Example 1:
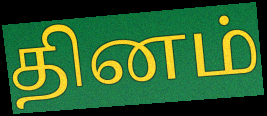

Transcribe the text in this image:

தினம்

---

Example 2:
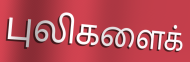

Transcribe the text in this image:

புலிகளைக்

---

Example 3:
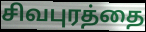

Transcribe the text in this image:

சிவபுரத்தை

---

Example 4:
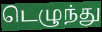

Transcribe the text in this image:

டெழுந்து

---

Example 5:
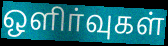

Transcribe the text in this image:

ஒளிர்வுகள்